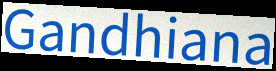
Gandhiana